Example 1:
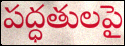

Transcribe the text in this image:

పద్ధతులపై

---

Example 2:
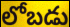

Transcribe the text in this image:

లోబడు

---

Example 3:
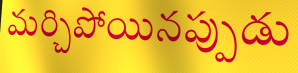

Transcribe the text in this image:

మర్చిపోయినప్పుడు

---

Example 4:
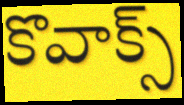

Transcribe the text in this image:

కొవాక్స్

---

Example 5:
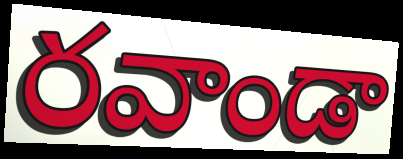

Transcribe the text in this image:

రవాండా